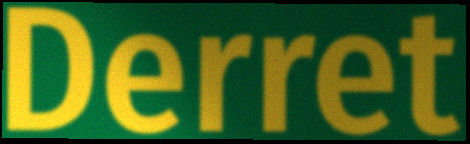
Derret